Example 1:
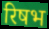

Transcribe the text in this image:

रिषभ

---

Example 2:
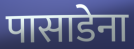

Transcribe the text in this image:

पासाडेना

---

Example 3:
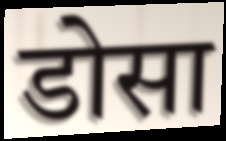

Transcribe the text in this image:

डोसा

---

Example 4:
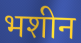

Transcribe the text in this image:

भशीन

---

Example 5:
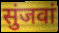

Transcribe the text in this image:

सुंजवां